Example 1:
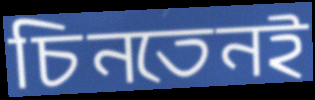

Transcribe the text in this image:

চিনতেনই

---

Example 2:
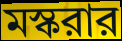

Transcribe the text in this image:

মস্করার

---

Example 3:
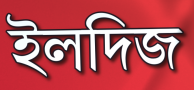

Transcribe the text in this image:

ইলদিজ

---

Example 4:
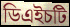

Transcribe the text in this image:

ডিএইচটি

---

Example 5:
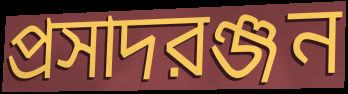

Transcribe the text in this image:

প্রসাদরঞ্জন